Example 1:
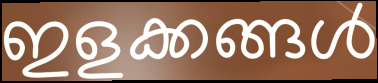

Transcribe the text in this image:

ഇളക്കങ്ങൾ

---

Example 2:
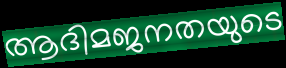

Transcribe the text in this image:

ആദിമജനതയുടെ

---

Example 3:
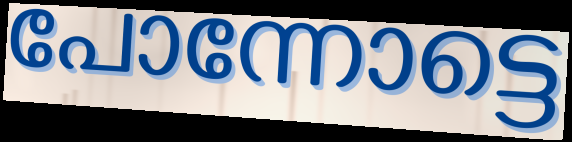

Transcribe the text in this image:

പോന്നോട്ടെ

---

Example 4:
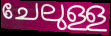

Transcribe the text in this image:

ചേലുള്ള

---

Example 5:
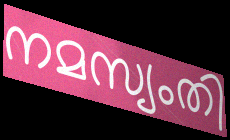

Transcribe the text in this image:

നമസ്യംതി